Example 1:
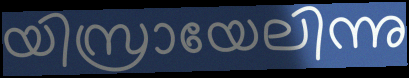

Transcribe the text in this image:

യിസ്രായേലിന്നു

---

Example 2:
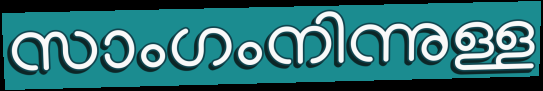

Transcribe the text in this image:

സാംഗംനിന്നുള്ള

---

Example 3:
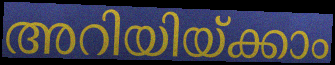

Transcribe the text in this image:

അറിയിയ്ക്കാം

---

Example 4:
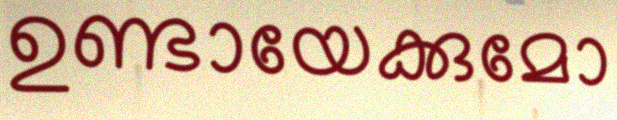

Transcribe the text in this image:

ഉണ്ടായേക്കുമോ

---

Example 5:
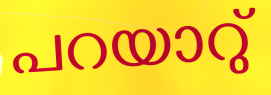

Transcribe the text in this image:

പറയാറു്